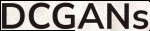
DCGANs